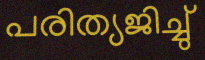
പരിത്യജിച്ചു്